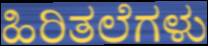
ಹಿರಿತಲೆಗಳು